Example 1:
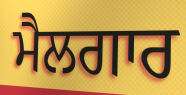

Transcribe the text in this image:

ਮੈਲਗਾਰ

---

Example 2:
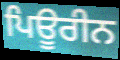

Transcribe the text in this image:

ਪਿਊਰੀਨ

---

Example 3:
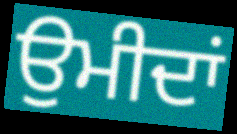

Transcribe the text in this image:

ਉਮੀਦਾਂ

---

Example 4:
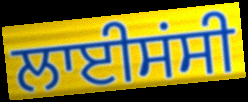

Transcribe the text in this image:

ਲਾਈਸਂਸੀ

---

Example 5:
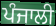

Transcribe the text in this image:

ਪੰਜਾਲੀ